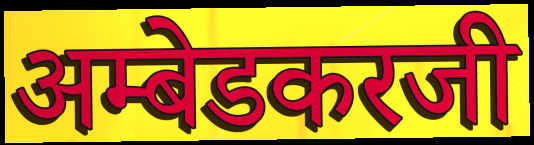
अम्बेडकरजी